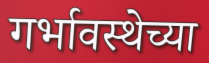
गर्भावस्थेच्या